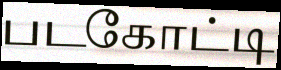
படகோட்டி